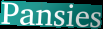
Pansies